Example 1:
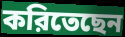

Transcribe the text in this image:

করিতেছেন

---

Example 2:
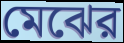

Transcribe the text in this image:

মেঝের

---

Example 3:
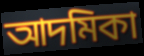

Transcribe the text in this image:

আদমিকা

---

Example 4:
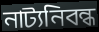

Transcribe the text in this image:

নাট্যনিবন্ধ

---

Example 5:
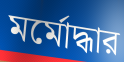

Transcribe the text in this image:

মর্মোদ্ধার